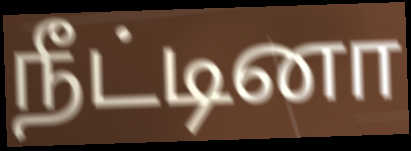
நீட்டினா